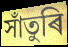
সাঁতুৰি